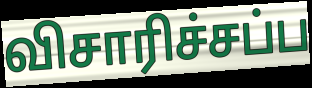
விசாரிச்சப்ப